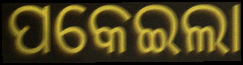
ପକେଇଲା